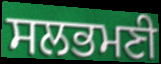
ਸਲਭਮਣੀ